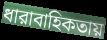
ধারাবাহিকতায়